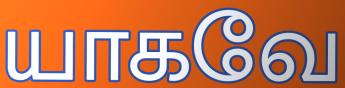
யாகவே